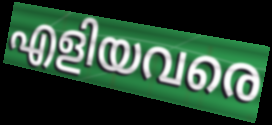
എളിയവരെ